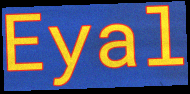
Eyal